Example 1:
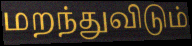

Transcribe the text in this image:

மறந்துவிடும்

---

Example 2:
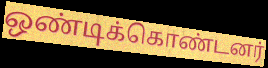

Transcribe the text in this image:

ஒண்டிக்கொண்டனர்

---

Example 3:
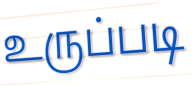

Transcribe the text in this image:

உருப்படி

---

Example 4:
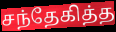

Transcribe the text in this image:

சந்தேகித்த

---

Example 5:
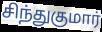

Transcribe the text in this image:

சிந்துகுமார்